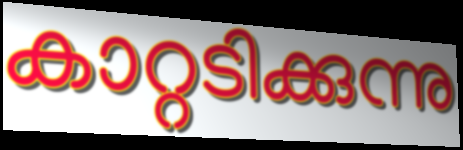
കാറ്റടിക്കുന്നു